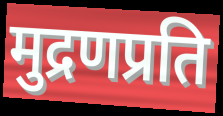
मुद्रणप्रति